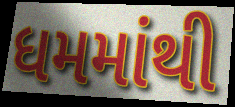
ધમમાંથી